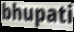
bhupati